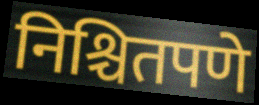
निश्चितपणे